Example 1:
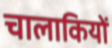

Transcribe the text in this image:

चालाकियों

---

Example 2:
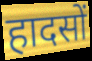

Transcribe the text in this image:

हादसों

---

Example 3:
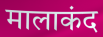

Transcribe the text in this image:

मालाकंद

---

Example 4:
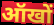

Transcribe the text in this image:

ऑखों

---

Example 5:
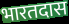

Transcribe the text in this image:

भारतदास